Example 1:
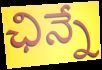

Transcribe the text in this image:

ఛిన్నే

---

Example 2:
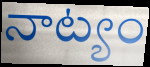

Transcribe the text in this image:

నాట్యం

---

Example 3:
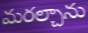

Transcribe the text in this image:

మరల్చాను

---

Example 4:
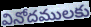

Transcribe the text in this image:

వినోదములకు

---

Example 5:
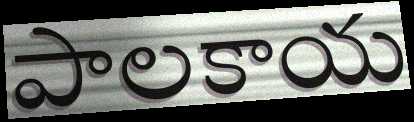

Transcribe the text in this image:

పాలకాయ